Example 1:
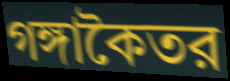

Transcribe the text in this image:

গঙ্গাকৈতর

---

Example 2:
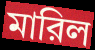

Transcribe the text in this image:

মারিল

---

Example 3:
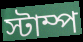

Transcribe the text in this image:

স্টাম্প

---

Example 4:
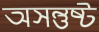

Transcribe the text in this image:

অসন্তুষ্ট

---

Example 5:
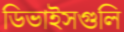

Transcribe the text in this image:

ডিভাইসগুলি